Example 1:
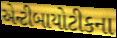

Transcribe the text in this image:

એન્ટીબાયોટીકના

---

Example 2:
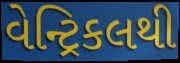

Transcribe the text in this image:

વેન્ટ્રિકલથી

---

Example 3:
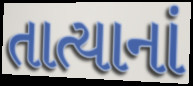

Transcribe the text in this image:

તાત્યાનાં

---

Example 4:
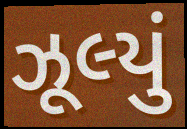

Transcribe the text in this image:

ઝૂલ્યું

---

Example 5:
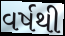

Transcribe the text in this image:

વર્ષથી